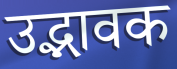
उद्भावक